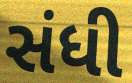
સંધી